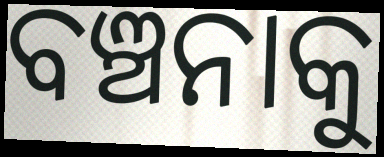
ବଞ୍ଚନାକୁ